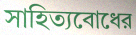
সাহিত্যবোধের